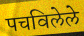
पचविलेले